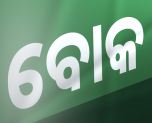
ବୋକ